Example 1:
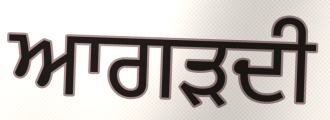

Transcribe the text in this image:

ਆਗੜਦੀ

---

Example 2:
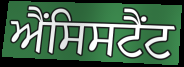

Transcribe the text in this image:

ਐਂਸਿਸਟੈਂਟ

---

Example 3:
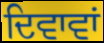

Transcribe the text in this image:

ਦਿਵਾਵਾਂ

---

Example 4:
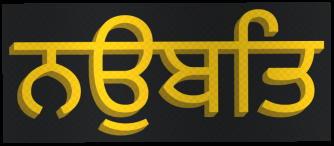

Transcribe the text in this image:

ਨਉਬਤਿ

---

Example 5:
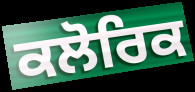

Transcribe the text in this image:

ਕਲੋਰਿਕ